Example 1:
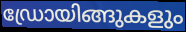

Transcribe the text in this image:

ഡ്രോയിങ്ങുകളും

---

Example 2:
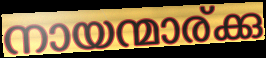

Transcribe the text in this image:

നായന്മാര്ക്കു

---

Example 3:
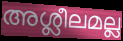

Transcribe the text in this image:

അശ്ലീലമല്ല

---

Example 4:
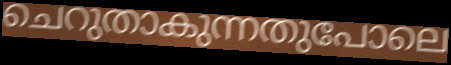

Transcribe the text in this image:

ചെറുതാകുന്നതുപോലെ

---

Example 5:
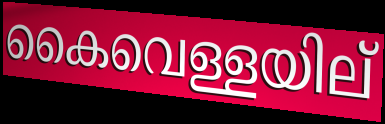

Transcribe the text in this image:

കൈവെള്ളയില്